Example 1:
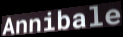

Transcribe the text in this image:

Annibale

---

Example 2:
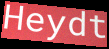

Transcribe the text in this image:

Heydt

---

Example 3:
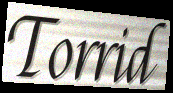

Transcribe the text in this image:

Torrid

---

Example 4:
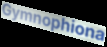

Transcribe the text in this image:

Gymnophiona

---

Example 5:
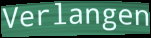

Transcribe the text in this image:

Verlangen